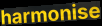
harmonise